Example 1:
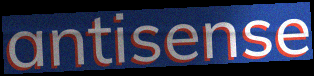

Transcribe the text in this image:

antisense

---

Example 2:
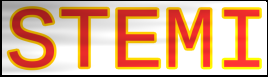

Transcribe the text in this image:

STEMI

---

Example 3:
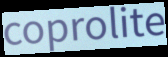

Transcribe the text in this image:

coprolite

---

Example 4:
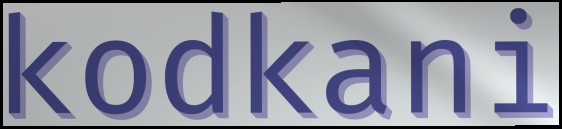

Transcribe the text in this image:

kodkani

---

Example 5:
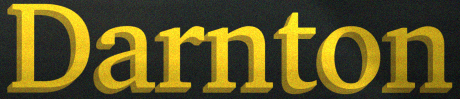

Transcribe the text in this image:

Darnton